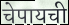
चेपायची